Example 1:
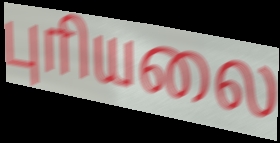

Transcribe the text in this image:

புரியலை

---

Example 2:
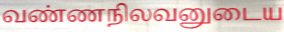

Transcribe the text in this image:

வண்ணநிலவனுடைய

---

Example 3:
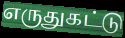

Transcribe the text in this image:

எருதுகட்டு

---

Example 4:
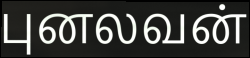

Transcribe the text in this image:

புனலவன்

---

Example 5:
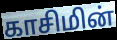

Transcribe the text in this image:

காசிமின்